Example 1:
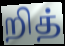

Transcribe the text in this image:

றித்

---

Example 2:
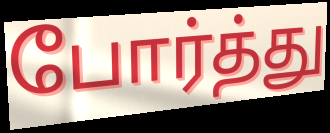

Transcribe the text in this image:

போர்த்து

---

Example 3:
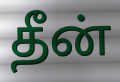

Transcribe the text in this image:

தீன்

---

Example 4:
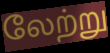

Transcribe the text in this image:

லேற்று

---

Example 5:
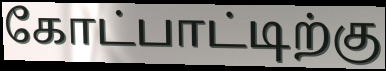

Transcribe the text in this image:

கோட்பாட்டிற்கு